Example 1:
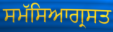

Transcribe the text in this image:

ਸਮੱਸਿਆਗ੍ਰਸਤ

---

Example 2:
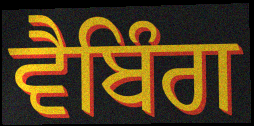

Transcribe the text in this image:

ਵੈਬਿੰਗ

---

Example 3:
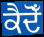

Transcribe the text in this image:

ਕੈਦੋਁ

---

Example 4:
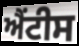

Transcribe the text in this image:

ਐਂਟੀਸ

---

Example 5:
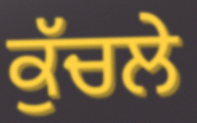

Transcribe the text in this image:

ਕੁੱਚਲੇ